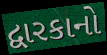
દ્વારકાનો